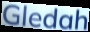
Gledah